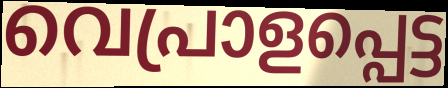
വെപ്രാളപ്പെട്ട